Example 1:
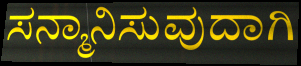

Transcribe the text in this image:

ಸನ್ಮಾನಿಸುವುದಾಗಿ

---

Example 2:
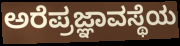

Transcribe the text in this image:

ಅರೆಪ್ರಜ್ಞಾವಸ್ಥೆಯ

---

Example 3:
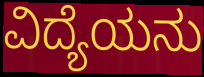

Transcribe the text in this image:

ವಿದ್ಯೆಯನು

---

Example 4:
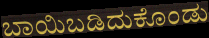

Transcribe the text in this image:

ಬಾಯಿಬಡಿದುಕೊಂಡು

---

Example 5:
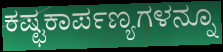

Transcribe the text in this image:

ಕಷ್ಟಕಾರ್ಪಣ್ಯಗಳನ್ನೂ